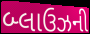
બ્લાઉઝની